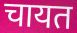
चायत